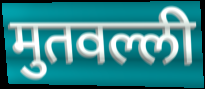
मुतवल्ली